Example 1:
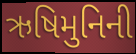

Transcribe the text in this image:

ઋષિમુનિની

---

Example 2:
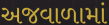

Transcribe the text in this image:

અજવાળામાં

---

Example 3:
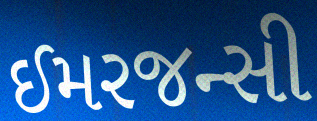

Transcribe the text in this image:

ઈમરજન્સી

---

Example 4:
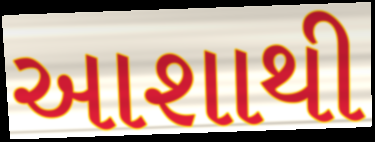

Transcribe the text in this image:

આશાથી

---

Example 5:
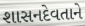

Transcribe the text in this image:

શાસનદેવતાને